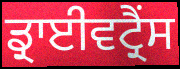
ਡ੍ਰਾਈਵਟ੍ਰੈਂਸ